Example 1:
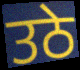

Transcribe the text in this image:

उठे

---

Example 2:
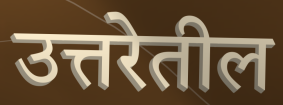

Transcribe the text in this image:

उत्तरेतील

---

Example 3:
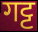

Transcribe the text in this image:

गट्ट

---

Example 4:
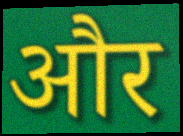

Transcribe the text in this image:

और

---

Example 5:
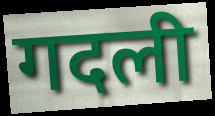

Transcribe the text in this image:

गदली